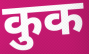
कुक